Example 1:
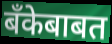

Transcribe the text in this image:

बँकेबाबत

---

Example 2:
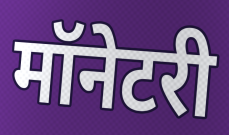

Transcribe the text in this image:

मॉनेटरी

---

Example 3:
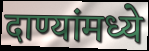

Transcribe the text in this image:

दाण्यांमध्ये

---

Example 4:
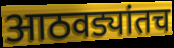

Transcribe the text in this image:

आठवड्यांतच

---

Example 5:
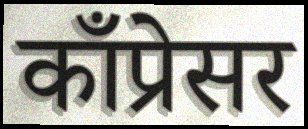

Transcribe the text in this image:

काँप्रेसर